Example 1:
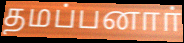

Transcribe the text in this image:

தமப்பனார்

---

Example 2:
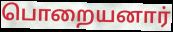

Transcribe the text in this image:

பொறையனார்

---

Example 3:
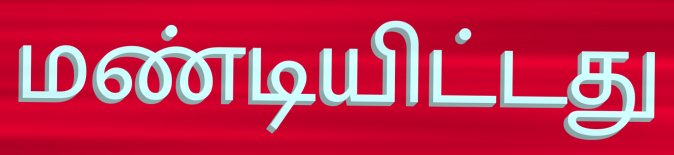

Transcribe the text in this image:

மண்டியிட்டது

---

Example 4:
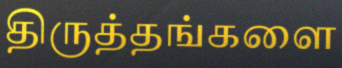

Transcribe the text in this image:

திருத்தங்களை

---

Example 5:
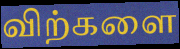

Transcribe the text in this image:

விற்களை